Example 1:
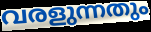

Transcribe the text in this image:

വരളുന്നതും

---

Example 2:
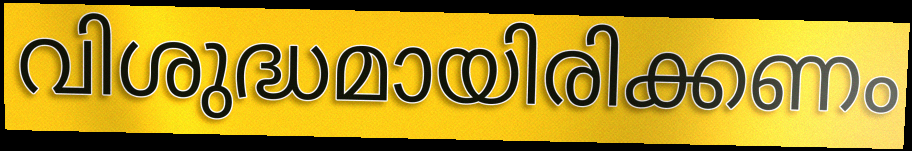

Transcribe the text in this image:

വിശുദ്ധമായിരിക്കണം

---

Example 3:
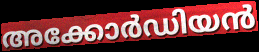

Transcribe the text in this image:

അക്കോർഡിയൻ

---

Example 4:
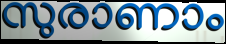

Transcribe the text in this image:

സുരാണാം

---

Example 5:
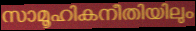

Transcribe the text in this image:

സാമൂഹികനീതിയിലും